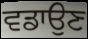
ਵਡਾਉਣ